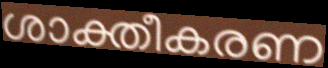
ശാക്തീകരണ